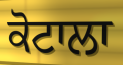
ਕੋਟਾਲਾ